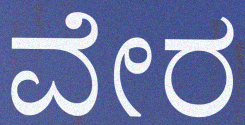
ವೇರ